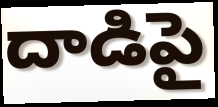
దాడిపై